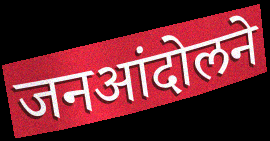
जनआंदोलने